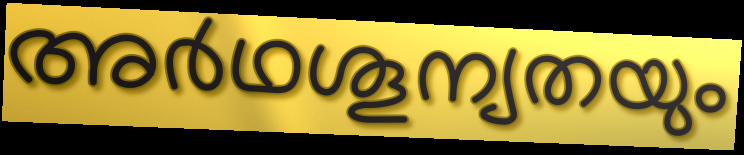
അർഥശൂന്യതയും